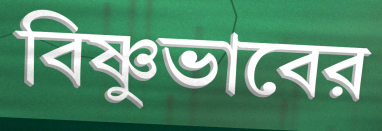
বিষ্ণুভাবের